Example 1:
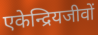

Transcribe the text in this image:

एकेन्द्रियजीवों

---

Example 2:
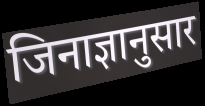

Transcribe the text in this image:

जिनाज्ञानुसार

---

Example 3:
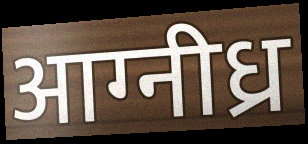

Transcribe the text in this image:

आग्नीध्र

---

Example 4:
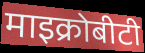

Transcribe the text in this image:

माइक्रोबीटी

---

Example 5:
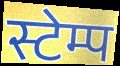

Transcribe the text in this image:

स्टेम्प